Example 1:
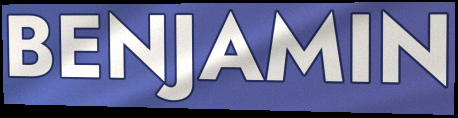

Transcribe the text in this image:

BENJAMIN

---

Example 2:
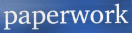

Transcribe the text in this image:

paperwork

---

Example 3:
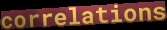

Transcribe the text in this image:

correlations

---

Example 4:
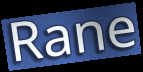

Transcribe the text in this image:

Rane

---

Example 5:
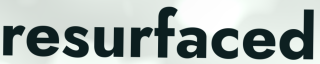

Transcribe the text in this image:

resurfaced